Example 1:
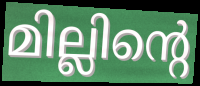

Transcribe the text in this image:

മില്ലിന്റെ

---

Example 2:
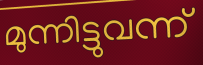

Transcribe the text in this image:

മുന്നിട്ടുവന്ന്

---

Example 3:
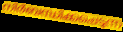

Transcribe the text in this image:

നിർബന്ധിക്കപ്പെടുന്ന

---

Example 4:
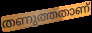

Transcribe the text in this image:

തണുത്തതാണ്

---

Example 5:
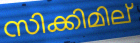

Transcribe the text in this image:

സിക്കിമില്